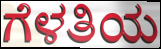
ಗೆಳತಿಯ